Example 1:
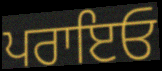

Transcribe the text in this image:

ਪਰਾਇਓ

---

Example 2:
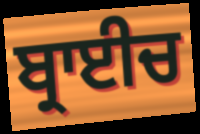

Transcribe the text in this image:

ਬ੍ਰਾਈਚ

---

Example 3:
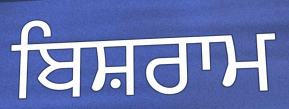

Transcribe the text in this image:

ਬਿਸ਼ਰਾਮ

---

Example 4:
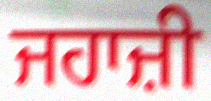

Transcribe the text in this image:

ਜਹਾਜ਼ੀ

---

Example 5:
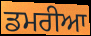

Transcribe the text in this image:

ਡਮਰੀਆ